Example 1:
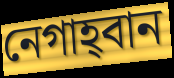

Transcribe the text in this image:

নেগাহ্‌বান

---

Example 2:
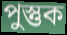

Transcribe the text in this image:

পুস্তুক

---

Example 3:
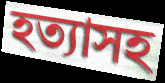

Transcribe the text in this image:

হত্যাসহ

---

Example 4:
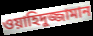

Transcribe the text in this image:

ওয়াহিদুজ্জামান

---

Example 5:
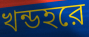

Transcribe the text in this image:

খন্ডহরে